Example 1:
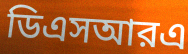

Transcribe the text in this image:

ডিএসআরএ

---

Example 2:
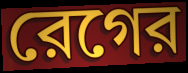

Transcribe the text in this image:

রেগের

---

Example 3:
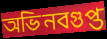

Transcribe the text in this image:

অভিনবগুপ্ত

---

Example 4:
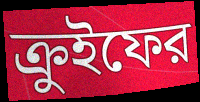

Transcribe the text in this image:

ক্রুইফের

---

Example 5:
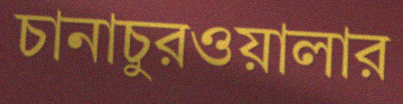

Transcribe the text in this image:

চানাচুরওয়ালার